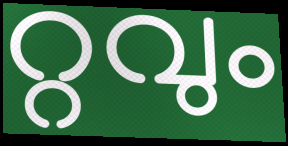
റ്റവും